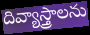
దివ్యాస్త్రాలను